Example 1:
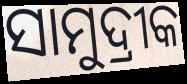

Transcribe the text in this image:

ସାମୁଦ୍ରୀକ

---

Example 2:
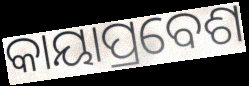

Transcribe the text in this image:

କାୟାପ୍ରବେଶ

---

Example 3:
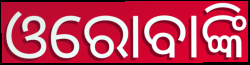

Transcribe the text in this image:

ଓରୋବାଙ୍କି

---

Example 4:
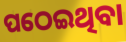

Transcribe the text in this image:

ପଠେଇଥିବା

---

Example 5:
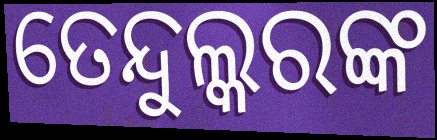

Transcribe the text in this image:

ତେନ୍ଦୁଲ୍କରଙ୍କ